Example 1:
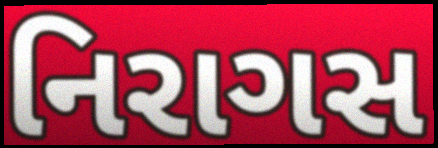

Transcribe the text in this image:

નિરાગસ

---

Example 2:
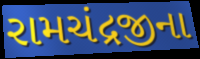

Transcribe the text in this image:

રામચંદ્રજીના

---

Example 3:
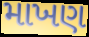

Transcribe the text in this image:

માખણ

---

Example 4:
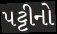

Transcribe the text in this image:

પટ્ટીનો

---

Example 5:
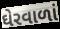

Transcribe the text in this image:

ઘેરવાળાં